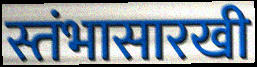
स्तंभासारखी